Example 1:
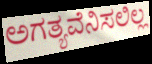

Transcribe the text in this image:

ಅಗತ್ಯವೆನಿಸಲಿಲ್ಲ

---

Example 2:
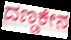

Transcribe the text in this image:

ದಣ್ಡಕೇನ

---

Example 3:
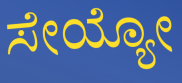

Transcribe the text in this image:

ಸೇಯ್ಯೋ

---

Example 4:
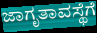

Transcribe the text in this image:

ಜಾಗೃತಾವಸ್ಥೆಗೆ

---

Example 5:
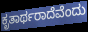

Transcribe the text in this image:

ಕೃತಾರ್ಥರಾದೆವೆಂದು